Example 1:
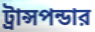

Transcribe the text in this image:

ট্রান্সপন্ডার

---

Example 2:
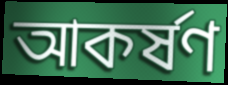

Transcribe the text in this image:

আকর্ষণ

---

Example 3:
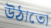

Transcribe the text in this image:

উঠাতো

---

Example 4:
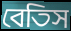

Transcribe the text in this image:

বেতিস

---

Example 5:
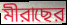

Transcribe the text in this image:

মীরাছের